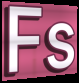
Fs